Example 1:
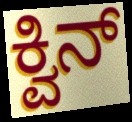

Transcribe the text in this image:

ಕ್ವಿನ್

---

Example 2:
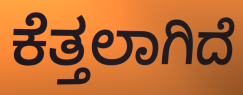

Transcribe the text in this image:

ಕೆತ್ತಲಾಗಿದೆ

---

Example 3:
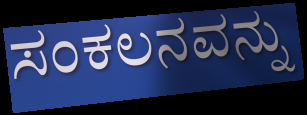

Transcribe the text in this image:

ಸಂಕಲನವನ್ನು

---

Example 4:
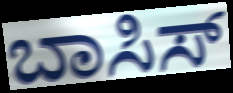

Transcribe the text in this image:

ಬಾಸಿಸ್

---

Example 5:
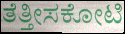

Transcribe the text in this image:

ತೆತ್ತೀಸಕೋಟಿ